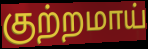
குற்றமாய்